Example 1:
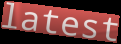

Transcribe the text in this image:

latest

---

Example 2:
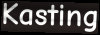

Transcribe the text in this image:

Kasting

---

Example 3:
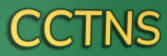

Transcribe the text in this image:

CCTNS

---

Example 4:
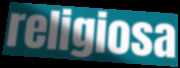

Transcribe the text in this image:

religiosa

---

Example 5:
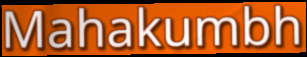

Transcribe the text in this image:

Mahakumbh